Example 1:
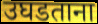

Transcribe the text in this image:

उघडताना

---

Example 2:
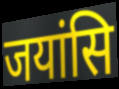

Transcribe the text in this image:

जयांसि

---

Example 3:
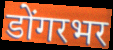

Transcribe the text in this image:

डोंगरभर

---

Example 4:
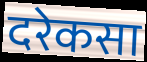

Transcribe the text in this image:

दरेकसा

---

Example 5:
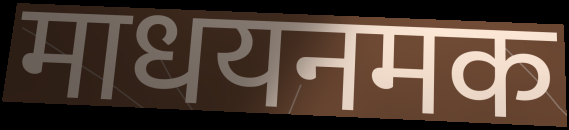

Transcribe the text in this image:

माधयनमक